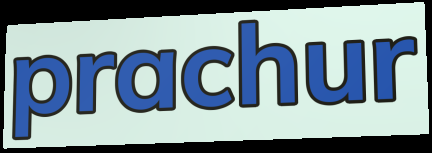
prachur